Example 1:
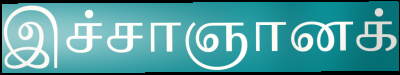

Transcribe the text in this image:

இச்சாஞானக்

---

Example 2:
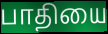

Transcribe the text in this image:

பாதியை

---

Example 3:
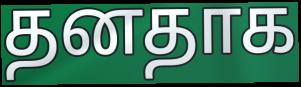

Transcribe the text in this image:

தனதாக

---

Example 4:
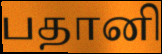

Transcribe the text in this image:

பதானி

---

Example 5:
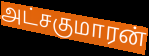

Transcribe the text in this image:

அட்சகுமாரன்